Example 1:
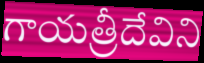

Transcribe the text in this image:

గాయత్రీదేవిని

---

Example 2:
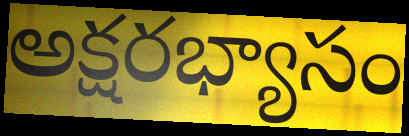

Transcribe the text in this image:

అక్షరభ్యాసం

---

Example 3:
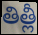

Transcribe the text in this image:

తిత్లీ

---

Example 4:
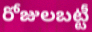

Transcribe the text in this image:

రోజులబట్టీ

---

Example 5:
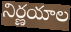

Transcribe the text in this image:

నిర్ణయాల